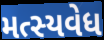
મત્સ્યવેધ